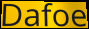
Dafoe